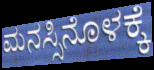
ಮನಸ್ಸಿನೊಳಕ್ಕೆ